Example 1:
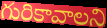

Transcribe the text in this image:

గురికావాలని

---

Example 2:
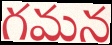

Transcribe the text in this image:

గమన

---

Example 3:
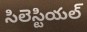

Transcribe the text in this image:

సిలెస్టియల్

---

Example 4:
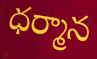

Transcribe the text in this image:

ధర్మాన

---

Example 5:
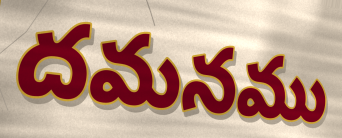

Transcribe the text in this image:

దమనము